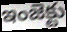
ఇంజెక్టు